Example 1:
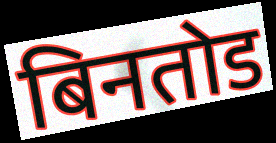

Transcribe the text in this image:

बिनतोड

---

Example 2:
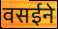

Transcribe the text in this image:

वसईने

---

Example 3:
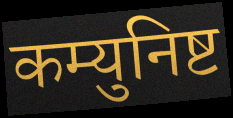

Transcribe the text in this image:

कम्युनिष्ट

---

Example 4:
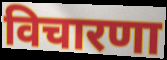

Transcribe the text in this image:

विचारणा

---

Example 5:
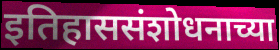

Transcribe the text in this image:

इतिहाससंशोधनाच्या